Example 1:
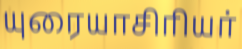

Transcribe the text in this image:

யுரையாசிரியர்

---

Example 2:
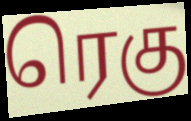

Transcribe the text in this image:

ரெகு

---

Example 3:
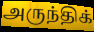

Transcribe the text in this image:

அருந்திக்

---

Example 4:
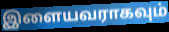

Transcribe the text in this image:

இளையவராகவும்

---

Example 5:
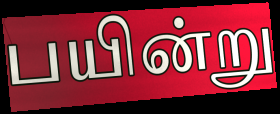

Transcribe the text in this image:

பயின்று